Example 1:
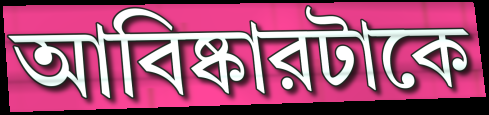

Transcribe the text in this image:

আবিষ্কারটাকে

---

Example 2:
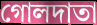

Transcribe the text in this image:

গোলদাতা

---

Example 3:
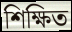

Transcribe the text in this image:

শিক্ষিত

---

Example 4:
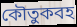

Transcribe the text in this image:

কৌতুকবহ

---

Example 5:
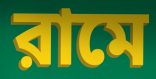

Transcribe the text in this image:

রামে